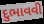
દુભાવવી